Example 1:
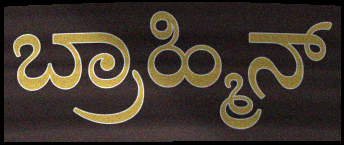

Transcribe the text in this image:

ಬ್ರಾಹ್ಮಿನ್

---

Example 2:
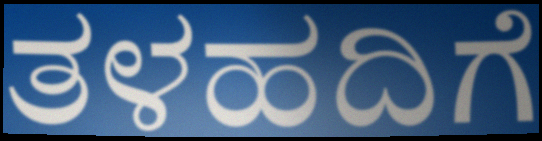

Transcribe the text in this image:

ತಳಹದಿಗೆ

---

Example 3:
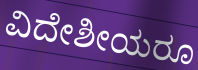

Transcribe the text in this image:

ವಿದೇಶೀಯರೂ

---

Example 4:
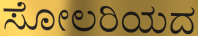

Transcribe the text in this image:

ಸೋಲರಿಯದ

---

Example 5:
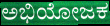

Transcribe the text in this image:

ಅಭಿಯೋಜಕ